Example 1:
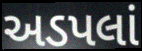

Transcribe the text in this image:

અડપલાં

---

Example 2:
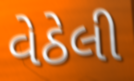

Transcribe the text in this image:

વેઠેલી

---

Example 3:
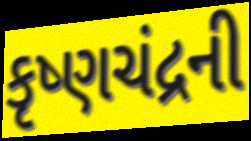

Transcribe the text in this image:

કૃષ્ણચંદ્રની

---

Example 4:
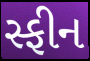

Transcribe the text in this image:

સ્ફીન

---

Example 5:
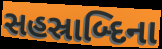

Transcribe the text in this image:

સહસ્રાબ્દિના